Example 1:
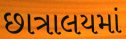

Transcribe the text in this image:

છાત્રાલયમાં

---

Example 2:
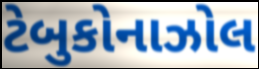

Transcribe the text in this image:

ટેબુકોનાઝોલ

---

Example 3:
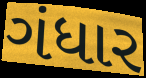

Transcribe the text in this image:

ગંધાર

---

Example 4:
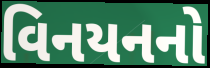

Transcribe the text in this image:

વિનયનનો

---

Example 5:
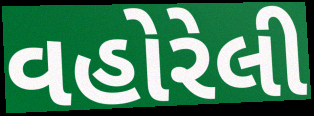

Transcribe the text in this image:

વહોરેલી